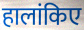
हालांकिए